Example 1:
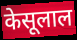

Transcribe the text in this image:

केसूलाल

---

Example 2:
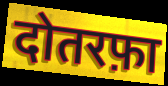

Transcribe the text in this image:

दोतरफ़ा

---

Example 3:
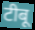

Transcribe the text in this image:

टीबू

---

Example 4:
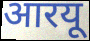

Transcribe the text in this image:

आरयू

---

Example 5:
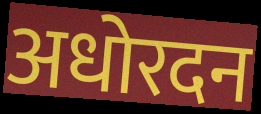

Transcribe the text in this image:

अधोरदन